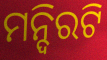
ମନ୍ଦିରଟି